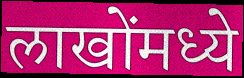
लाखोंमध्ये